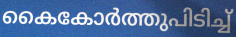
കൈകോർത്തുപിടിച്ച്